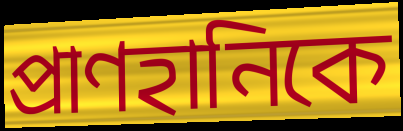
প্রাণহানিকে